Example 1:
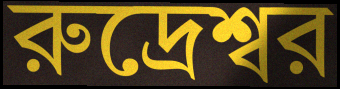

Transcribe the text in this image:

রুদ্রেশ্বর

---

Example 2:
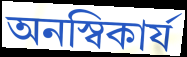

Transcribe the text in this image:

অনস্বিকার্য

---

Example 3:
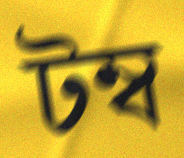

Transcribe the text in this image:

টম্ব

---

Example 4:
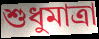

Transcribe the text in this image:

শুধুমাত্রা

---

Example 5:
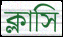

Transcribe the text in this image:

ক্লাসি